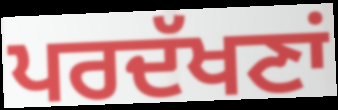
ਪਰਦੱਖਣਾਂ